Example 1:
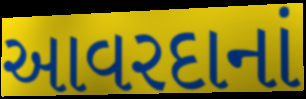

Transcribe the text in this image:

આવરદાનાં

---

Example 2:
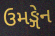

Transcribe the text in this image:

ઉમઙ્ગેન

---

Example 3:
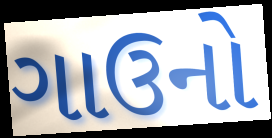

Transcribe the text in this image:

ગાઉનો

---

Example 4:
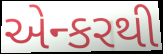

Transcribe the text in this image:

એન્કરથી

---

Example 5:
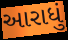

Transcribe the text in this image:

આરાધું